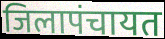
जिलापंचायत